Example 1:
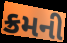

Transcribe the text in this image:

ક્રમની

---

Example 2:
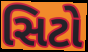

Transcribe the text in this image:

સિટો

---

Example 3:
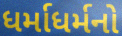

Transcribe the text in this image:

ધર્માધર્મનો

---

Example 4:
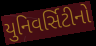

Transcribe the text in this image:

યુનિવર્સિટીનો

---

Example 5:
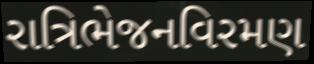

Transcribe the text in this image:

રાત્રિભેજનવિરમણ